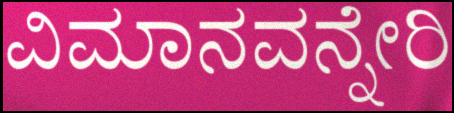
ವಿಮಾನವನ್ನೇರಿ